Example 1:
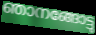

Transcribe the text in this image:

ഞാനങ്ങോട്ടു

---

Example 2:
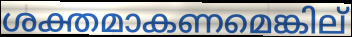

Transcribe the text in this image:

ശക്തമാകണമെങ്കില്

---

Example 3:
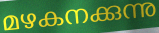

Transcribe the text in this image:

മഴകനക്കുന്നു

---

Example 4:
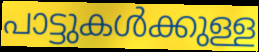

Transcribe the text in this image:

പാട്ടുകൾക്കുള്ള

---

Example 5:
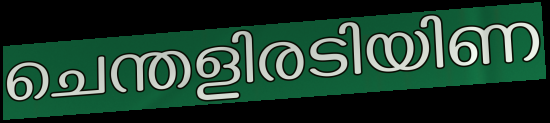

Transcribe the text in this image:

ചെന്തളിരടിയിണ